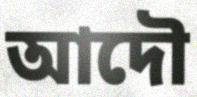
আদৌ